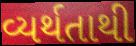
વ્યર્થતાથી